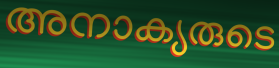
അനാക്യരുടെ